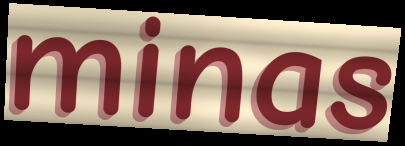
minas